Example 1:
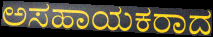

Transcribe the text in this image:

ಅಸಹಾಯಕರಾದ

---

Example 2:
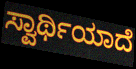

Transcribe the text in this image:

ಸ್ವಾರ್ಥಿಯಾದೆ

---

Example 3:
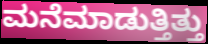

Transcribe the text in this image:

ಮನೆಮಾಡುತ್ತಿತ್ತು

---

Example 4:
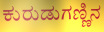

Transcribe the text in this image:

ಕುರುಡುಗಣ್ಣಿನ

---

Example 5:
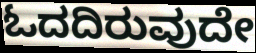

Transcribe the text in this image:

ಓದದಿರುವುದೇ